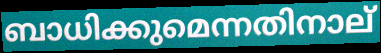
ബാധിക്കുമെന്നതിനാല്